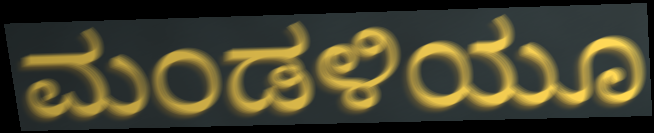
ಮಂಡಳಿಯೂ